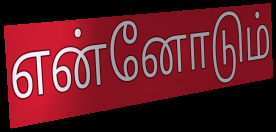
என்னோடும்